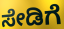
ಸೇಡಿಗೆ